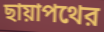
ছায়াপথের